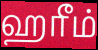
ஹரீம்